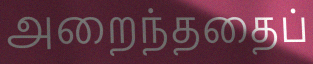
அறைந்ததைப்